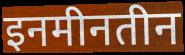
इनमीनतीन